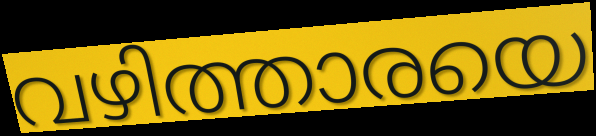
വഴിത്താരയെ